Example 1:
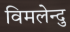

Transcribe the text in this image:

विमलेन्दु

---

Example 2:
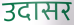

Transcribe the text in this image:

उदासर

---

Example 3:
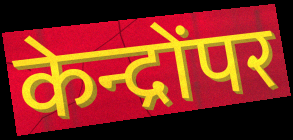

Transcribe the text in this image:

केन्द्रोंपर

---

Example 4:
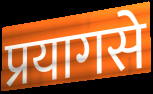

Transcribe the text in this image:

प्रयागसे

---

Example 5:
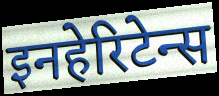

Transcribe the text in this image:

इनहेरिटेन्स